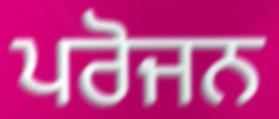
ਪਰੋਜਨ